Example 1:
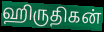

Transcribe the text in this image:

ஹிருதிகன்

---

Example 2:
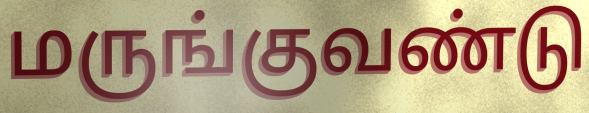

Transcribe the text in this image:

மருங்குவண்டு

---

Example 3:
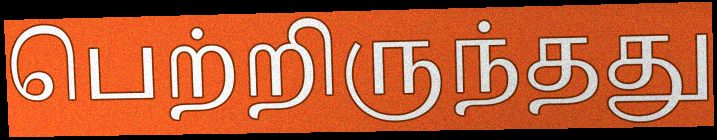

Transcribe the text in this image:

பெற்றிருந்தது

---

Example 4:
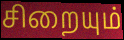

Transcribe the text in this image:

சிறையும்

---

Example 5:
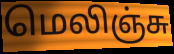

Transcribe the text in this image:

மெலிஞ்சு